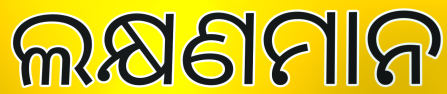
ଲକ୍ଷଣମାନ